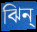
ঝিন্